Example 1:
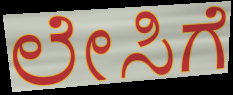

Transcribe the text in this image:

ಲೇಸಿಗೆ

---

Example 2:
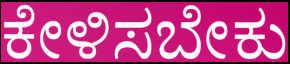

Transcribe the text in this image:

ಕೇಳಿಸಬೇಕು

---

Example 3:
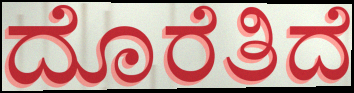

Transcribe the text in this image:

ದೊರೆತಿದೆ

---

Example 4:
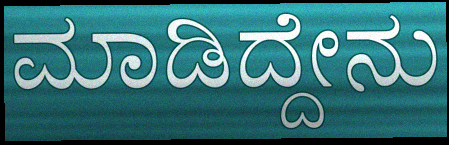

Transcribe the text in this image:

ಮಾಡಿದ್ದೇನು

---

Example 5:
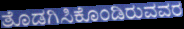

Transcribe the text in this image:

ತೊಡಗಿಸಿಕೊಂಡಿರುವವರ